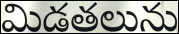
మిడతలును